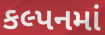
કલ્પનમાં